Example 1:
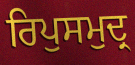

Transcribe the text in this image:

ਰਿਪੁਸਮੁਦ੍ਰ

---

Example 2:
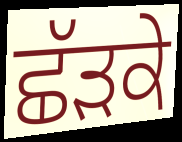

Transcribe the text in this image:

ਛੱੜਕੇ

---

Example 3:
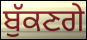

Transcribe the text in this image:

ਬੁੱਕਣਗੇ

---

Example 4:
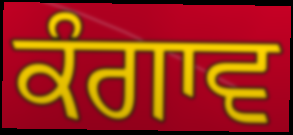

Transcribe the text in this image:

ਕੰਗਾਵ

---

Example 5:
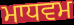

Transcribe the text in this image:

ਮਾਧਵਮ